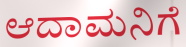
ಆದಾಮನಿಗೆ